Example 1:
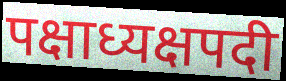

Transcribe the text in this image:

पक्षाध्यक्षपदी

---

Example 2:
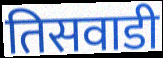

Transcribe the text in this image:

तिसवाडी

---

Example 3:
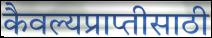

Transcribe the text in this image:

कैवल्यप्राप्तीसाठी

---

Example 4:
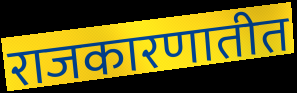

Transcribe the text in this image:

राजकारणातीत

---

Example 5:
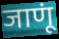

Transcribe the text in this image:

जाणूं